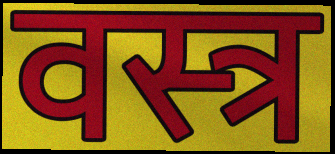
वस्त्र